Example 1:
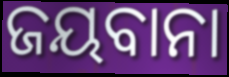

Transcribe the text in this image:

ଜୟବାନା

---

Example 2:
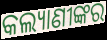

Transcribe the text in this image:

କଲ୍ୟାଣୀଙ୍କର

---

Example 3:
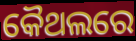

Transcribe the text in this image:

କୈଥଲରେ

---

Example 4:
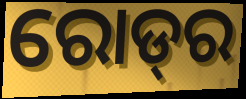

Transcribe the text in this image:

ରୋଡ୍‌ର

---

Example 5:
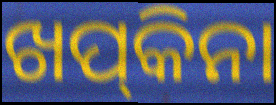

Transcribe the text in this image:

ଖପ୍‍କିନା